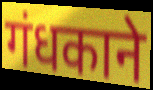
गंधकाने